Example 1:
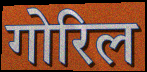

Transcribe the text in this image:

गोरिल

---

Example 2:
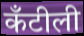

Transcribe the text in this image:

कँटीली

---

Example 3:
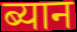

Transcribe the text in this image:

ब्यान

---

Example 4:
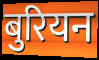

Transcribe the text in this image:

बुरियन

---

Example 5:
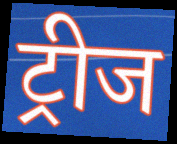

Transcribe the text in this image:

ट्रीज